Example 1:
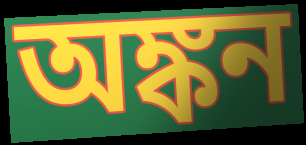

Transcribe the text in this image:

অঙ্কন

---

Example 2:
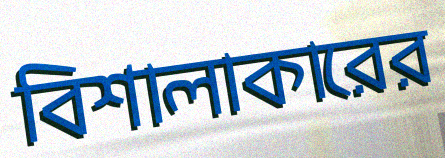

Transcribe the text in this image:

বিশালাকারের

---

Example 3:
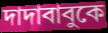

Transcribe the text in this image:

দাদাবাবুকে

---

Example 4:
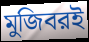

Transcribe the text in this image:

মুজিবরই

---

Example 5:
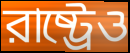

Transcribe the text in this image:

রাষ্ট্রেও